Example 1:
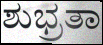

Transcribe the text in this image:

ಶುಭ್ರತಾ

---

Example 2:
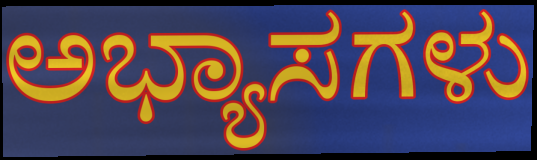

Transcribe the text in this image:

ಅಭ್ಯಾಸಗಳು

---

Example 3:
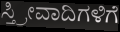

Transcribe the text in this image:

ಸ್ತ್ರೀವಾದಿಗಳಿಗೆ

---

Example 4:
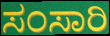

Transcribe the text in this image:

ಸಂಸಾರಿ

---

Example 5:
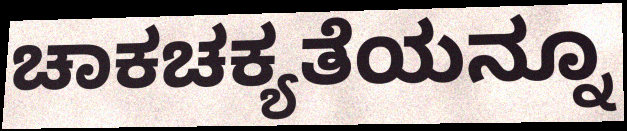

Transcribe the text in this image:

ಚಾಕಚಕ್ಯತೆಯನ್ನೂ